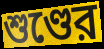
শুণ্ডের